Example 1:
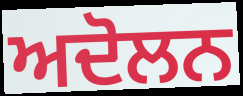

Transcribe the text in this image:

ਅਦੋਲਨ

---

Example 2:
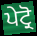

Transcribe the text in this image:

ਪੇਟ੍ਰੋ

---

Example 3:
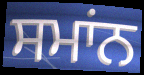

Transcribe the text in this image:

ਸਮਾਂਨ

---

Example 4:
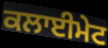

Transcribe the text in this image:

ਕਲਾਈਮੇਟ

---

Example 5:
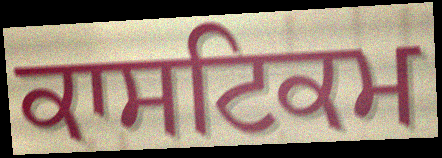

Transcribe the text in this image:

ਕਾਸਟਿਕਮ